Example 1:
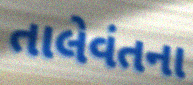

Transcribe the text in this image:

તાલેવંતના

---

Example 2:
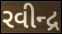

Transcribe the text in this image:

રવીન્દ્ર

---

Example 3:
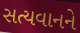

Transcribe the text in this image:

સત્યવાનને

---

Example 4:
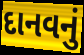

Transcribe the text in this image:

દાનવનું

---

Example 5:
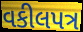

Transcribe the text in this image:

વકીલપત્ર